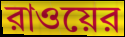
রাওয়ের